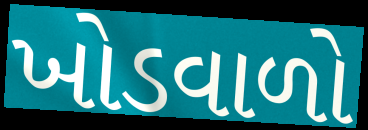
ખોડવાળો